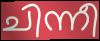
ചിന്നീ